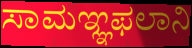
ಸಾಮಞ್ಞಫಲಾನಿ